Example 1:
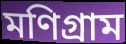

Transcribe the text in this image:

মণিগ্রাম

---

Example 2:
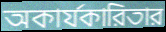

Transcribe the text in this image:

অকার্যকারিতার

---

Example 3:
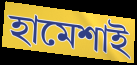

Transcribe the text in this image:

হামেশাই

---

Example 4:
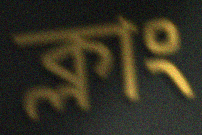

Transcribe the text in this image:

ক্লাং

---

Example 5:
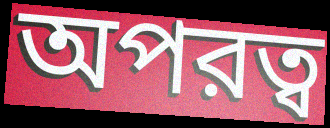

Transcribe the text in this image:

অপরত্ব